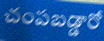
చంపబడ్డారో